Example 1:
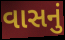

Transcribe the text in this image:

વાસનું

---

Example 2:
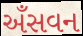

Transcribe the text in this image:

અઁસવન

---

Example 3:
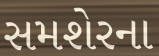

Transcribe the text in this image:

સમશેરના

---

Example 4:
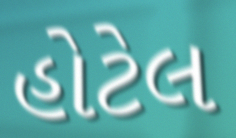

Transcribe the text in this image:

હોટેલ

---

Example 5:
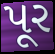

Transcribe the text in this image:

પૂર